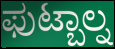
ಫುಟ್ಬಾಲ್ನ